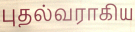
புதல்வராகிய